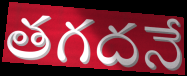
తగదనే